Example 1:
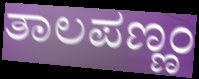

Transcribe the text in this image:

ತಾಲಪಣ್ಣಂ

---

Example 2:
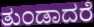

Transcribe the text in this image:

ತುಂಡಾದರೆ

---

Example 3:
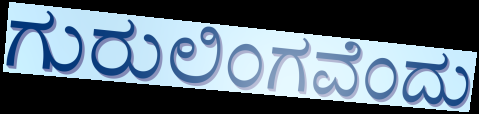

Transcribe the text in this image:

ಗುರುಲಿಂಗವೆಂದು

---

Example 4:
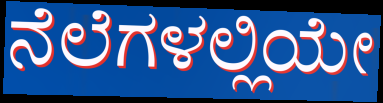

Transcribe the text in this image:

ನೆಲೆಗಳಲ್ಲಿಯೇ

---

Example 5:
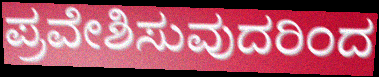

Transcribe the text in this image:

ಪ್ರವೇಶಿಸುವುದರಿಂದ